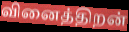
வினைத்திறன்